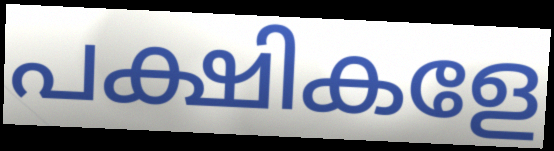
പക്ഷികളേ